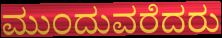
ಮುಂದುವರೆದರು